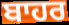
ਬਾਹਰ